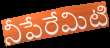
నీపేరేమిటి